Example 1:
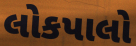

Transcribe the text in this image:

લોકપાલો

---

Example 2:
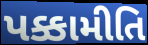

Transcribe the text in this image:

પક્કામીતિ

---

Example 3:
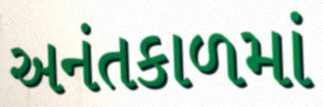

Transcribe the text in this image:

અનંતકાળમાં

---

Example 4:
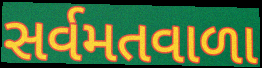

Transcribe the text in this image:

સર્વમતવાળા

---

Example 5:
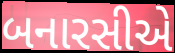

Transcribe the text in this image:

બનારસીએ